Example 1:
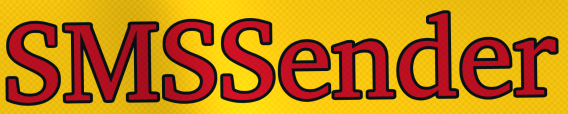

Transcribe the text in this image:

SMSSender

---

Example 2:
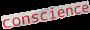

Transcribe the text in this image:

conscience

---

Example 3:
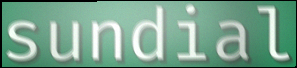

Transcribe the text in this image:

sundial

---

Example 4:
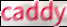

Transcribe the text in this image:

caddy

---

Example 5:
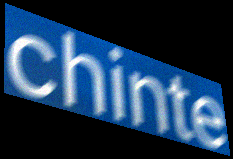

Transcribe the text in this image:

chinte